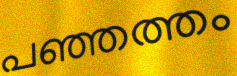
പഞ്ഞത്തം